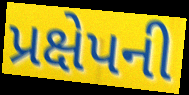
પ્રક્ષેપની